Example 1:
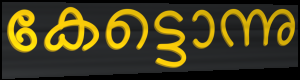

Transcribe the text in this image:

കേട്ടൊന്നു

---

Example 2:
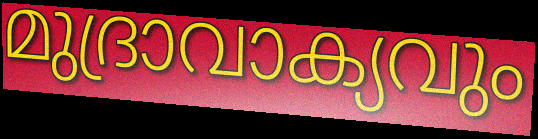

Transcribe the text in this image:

മുദ്രാവാക്യവും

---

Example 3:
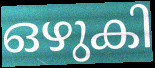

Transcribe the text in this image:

ഒഴുകി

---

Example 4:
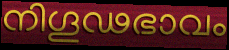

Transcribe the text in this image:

നിഗൂഢഭാവം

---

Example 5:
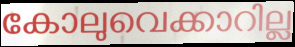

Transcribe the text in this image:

കോലുവെക്കാറില്ല